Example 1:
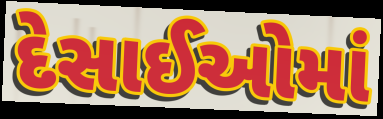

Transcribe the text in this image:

દેસાઈઓમાં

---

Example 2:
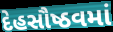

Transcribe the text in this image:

દેહસૌષ્ઠવમાં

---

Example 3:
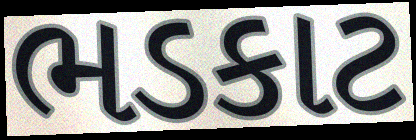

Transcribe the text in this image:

ભડકાટ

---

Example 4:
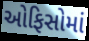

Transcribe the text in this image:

ઓફિસોમાં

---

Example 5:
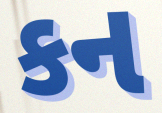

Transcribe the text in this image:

કન